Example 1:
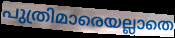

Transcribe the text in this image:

പുത്രിമാരെയല്ലാതെ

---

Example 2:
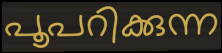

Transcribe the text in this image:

പൂപറിക്കുന്ന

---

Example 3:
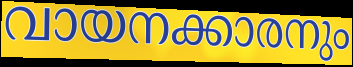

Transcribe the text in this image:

വായനക്കാരനും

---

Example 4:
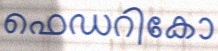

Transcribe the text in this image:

ഫെഡറികോ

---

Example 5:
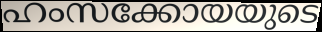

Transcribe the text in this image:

ഹംസക്കോയയുടെ